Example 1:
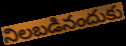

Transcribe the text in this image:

నిలబడినందుకు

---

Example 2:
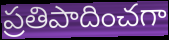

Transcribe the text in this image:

ప్రతిపాదించగా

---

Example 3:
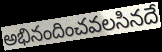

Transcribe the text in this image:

అభినందించవలసినదే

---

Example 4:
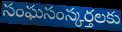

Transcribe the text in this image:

సంఘసంస్కర్తలకు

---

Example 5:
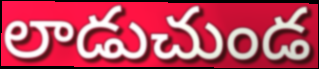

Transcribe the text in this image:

లాడుచుండ